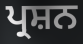
ਪ੍ਰਸ਼ਨ